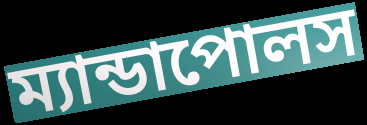
ম্যান্ডাপোলস